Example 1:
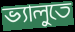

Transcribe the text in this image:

ভ্যালুতে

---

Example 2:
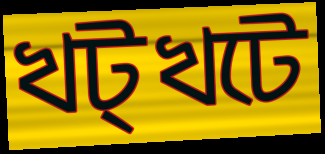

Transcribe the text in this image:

খট্‌খটে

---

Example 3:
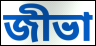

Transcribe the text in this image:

জীভা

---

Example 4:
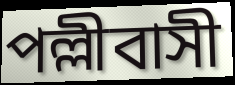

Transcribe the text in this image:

পল্লীবাসী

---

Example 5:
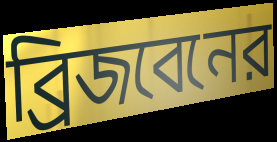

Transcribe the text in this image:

ব্রিজবেনের